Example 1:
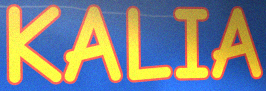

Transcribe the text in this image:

KALIA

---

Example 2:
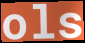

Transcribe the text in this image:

ols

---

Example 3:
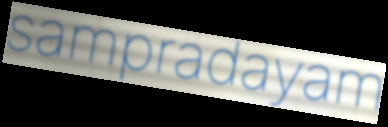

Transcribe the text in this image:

sampradayam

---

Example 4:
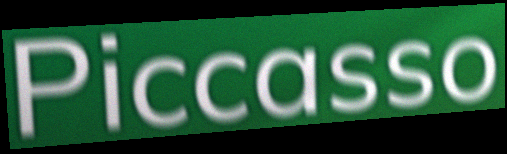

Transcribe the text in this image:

Piccasso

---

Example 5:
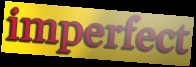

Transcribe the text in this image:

imperfect